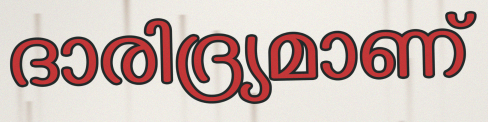
ദാരിദ്ര്യമാണ്